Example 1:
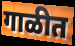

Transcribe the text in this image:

गाळीत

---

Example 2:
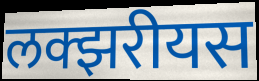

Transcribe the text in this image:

लक्झरीयस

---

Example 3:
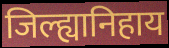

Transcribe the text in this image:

जिल्ह्यानिहाय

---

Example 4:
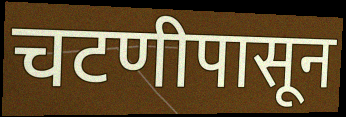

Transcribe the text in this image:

चटणीपासून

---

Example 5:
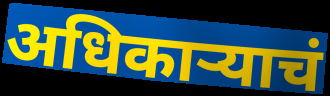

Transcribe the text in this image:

अधिकाऱ्याचं